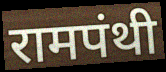
रामपंथी